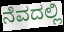
ನೆವದಲ್ಲಿ